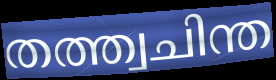
തത്ത്വചിന്ത